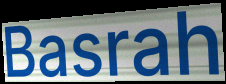
Basrah